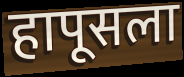
हापूसला